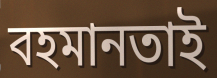
বহমানতাই